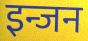
इन्जन